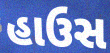
હાઉસ